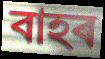
বাহৰ